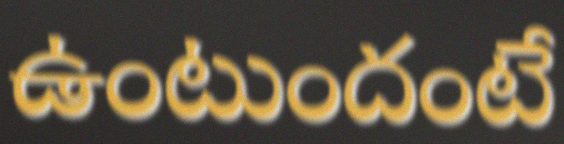
ఉంటుందంటే